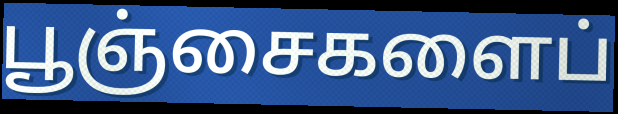
பூஞ்சைகளைப்